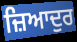
ਜ਼ਿਆਦੁਰ